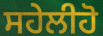
ਸਹੇਲੀਹੋ